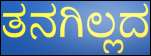
ತನಗಿಲ್ಲದ